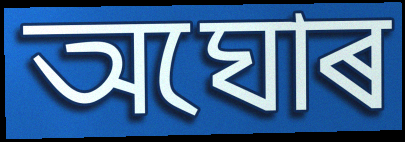
অঘোৰ